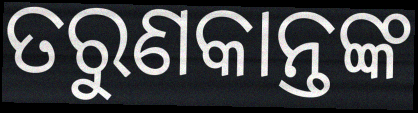
ତରୁଣକାନ୍ତଙ୍କ